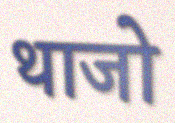
थाजो